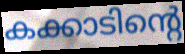
കക്കാടിന്റെ